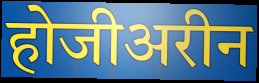
होजीअरीन